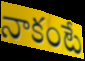
నాకంటే